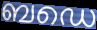
ബഡെ